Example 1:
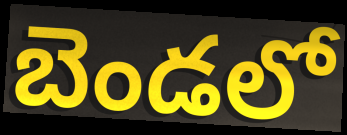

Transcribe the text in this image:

బెండలో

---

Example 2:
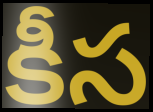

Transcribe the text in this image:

కీస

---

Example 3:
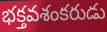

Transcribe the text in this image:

భక్తవశంకరుడు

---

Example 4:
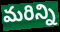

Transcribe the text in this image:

మరిన్ని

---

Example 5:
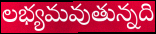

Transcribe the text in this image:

లభ్యమవుతున్నది